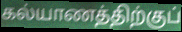
கல்யாணத்திற்குப்